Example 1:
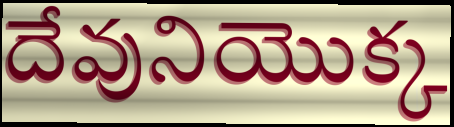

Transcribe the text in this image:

దేవునియొక్క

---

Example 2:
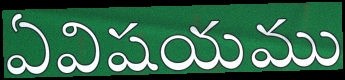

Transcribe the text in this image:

ఏవిషయము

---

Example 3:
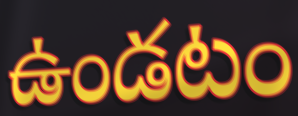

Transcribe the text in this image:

ఉండటం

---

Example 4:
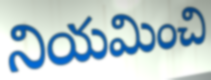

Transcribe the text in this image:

నియమించి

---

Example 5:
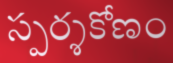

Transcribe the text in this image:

స్పర్శకోణం